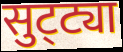
सुट्‌ट्या